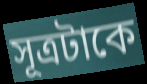
সূত্রটাকে